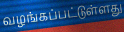
வழங்கப்பட்டுள்ளது